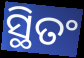
ସ୍ଥିତଂ